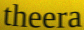
theera